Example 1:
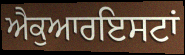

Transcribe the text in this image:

ਐਕੁਆਰਇਸਟਾਂ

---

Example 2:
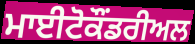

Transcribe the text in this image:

ਮਾਈਟੋਕੌਂਡਰੀਅਲ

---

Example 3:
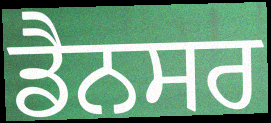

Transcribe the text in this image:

ਡੈਨਸਰ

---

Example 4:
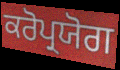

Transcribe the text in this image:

ਕਰੋਪ੍ਰਯੋਗ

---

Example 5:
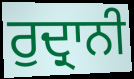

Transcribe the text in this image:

ਰੁਦ੍ਰਾਨੀ